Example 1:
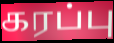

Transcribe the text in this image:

கரப்பு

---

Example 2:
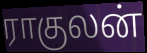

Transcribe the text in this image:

ராகுலன்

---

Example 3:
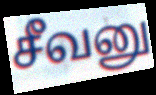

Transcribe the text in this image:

சீவனு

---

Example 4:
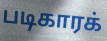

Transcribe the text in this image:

படிகாரக்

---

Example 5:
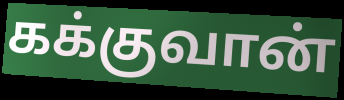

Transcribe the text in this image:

கக்குவான்